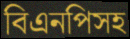
বিএনপিসহ